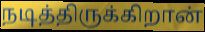
நடித்திருக்கிறான்